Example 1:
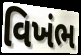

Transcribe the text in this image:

વિખંભ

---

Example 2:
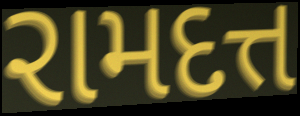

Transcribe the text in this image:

રામદત્ત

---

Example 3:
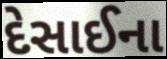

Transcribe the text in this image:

દેસાઈના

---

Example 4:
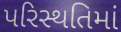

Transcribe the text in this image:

પરિસ્થતિમાં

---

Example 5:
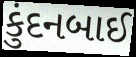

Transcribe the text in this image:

કુંદનબાઈ